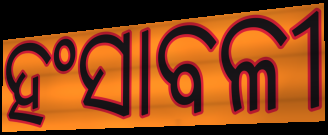
ହଂସାବଳୀ